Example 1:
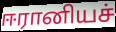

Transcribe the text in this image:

ஈரானியச்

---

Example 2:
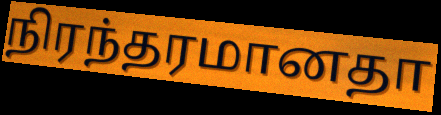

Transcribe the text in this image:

நிரந்தரமானதா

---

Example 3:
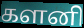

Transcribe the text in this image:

களனி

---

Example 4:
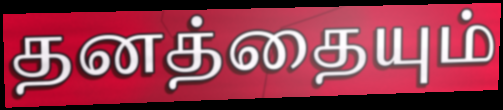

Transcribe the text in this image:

தனத்தையும்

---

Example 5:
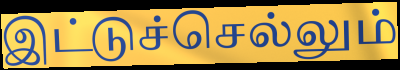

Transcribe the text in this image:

இட்டுச்செல்லும்